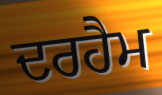
ਦਰਹੈਮ